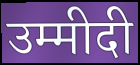
उम्मीदी